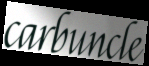
carbuncle